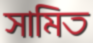
সামিত